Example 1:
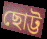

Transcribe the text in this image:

ছোট্ট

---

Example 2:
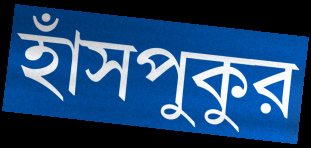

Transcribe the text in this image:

হাঁসপুকুর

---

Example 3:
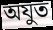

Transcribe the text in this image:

অযুত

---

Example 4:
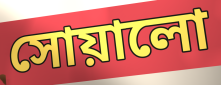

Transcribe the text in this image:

সোয়ালো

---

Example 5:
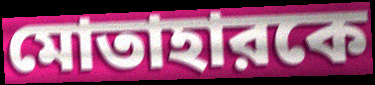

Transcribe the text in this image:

মোতাহারকে